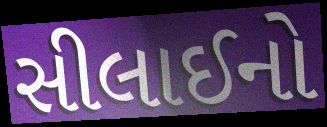
સીલાઈનો